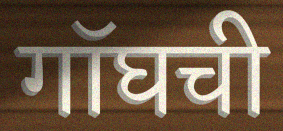
गॉघची